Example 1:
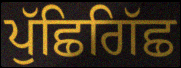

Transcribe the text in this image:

ਪੁੱਛਿਗਿੱਛ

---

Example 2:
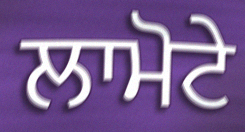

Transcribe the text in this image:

ਲਾਮੋਟੇ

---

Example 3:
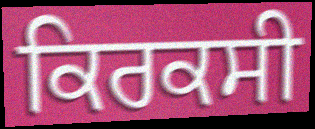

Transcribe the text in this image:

ਕਿਰਕਸੀ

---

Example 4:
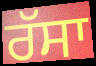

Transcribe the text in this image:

ਰੱਸਾ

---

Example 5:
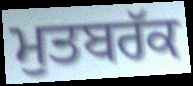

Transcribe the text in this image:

ਮੁਤਬਰੱਕ